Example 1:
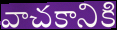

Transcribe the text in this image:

వాచకానికి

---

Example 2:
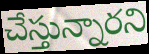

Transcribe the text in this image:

చేస్తున్నారని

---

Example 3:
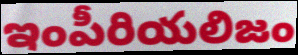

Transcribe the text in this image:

ఇంపీరియలిజం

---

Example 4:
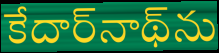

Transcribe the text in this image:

కేదార్‌నాథ్‌ను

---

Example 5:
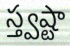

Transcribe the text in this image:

స్త్వష్టా